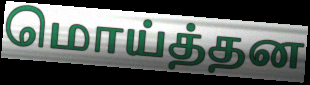
மொய்த்தன